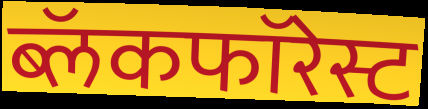
ब्लॅकफॉरेस्ट